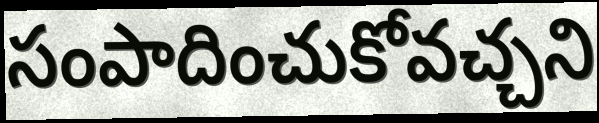
సంపాదించుకోవచ్చని